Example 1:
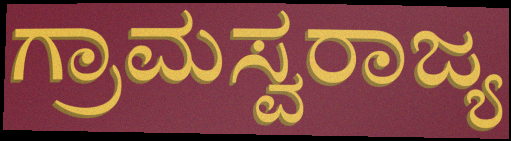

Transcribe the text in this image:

ಗ್ರಾಮಸ್ವರಾಜ್ಯ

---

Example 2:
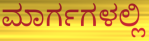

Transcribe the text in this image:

ಮಾರ್ಗಗಳಲ್ಲಿ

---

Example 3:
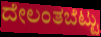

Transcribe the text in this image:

ದೇಲಂತಬೆಟ್ಟು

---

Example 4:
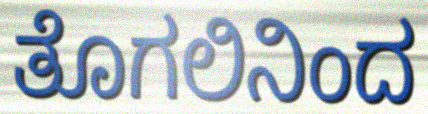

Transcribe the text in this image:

ತೊಗಲಿನಿಂದ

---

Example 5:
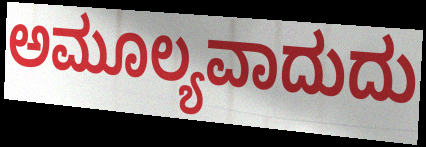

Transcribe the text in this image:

ಅಮೂಲ್ಯವಾದುದು